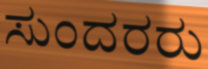
ಸುಂದರರು